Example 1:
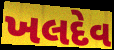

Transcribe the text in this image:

ખલદેવ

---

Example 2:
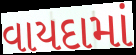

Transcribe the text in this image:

વાયદામાં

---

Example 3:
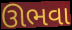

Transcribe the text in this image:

ઊભવા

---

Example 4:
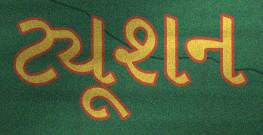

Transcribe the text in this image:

ટ્યૂશન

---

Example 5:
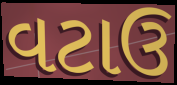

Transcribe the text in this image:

વટાઉ